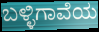
ಬಳ್ಳಿಗಾವೆಯ